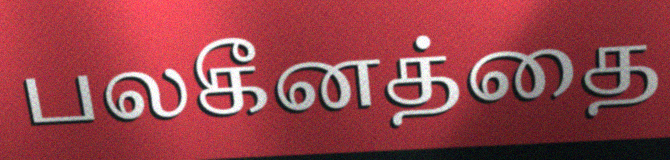
பலகீனத்தை